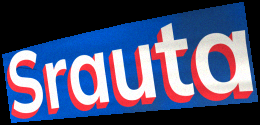
Srauta